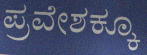
ಪ್ರವೇಶಕ್ಕೂ